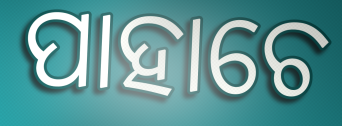
ପାହାଚେ